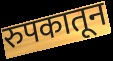
रुपकातून